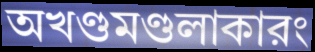
অখণ্ডমণ্ডলাকারং